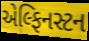
એલ્ફિનસ્ટન